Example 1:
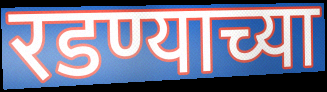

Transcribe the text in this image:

रडण्याच्या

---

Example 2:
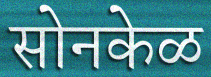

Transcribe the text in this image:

सोनकेळ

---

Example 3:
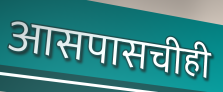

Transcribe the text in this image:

आसपासचीही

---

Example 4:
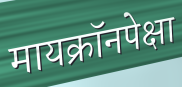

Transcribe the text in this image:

मायक्रॉनपेक्षा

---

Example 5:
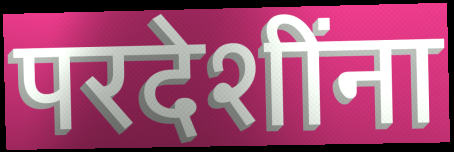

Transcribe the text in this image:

परदेशींना